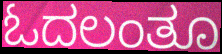
ಓದಲಂತೂ